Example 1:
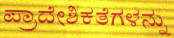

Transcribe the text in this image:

ಪ್ರಾದೇಶಿಕತೆಗಳನ್ನು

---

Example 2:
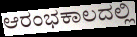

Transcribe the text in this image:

ಆರಂಭಕಾಲದಲ್ಲಿ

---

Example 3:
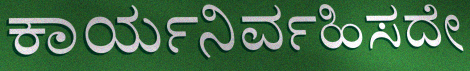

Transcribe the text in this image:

ಕಾರ್ಯನಿರ್ವಹಿಸದೇ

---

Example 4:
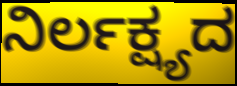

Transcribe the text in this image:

ನಿರ್ಲಕ್ಷ್ಯದ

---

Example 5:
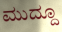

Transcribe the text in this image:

ಮುದ್ದೂ